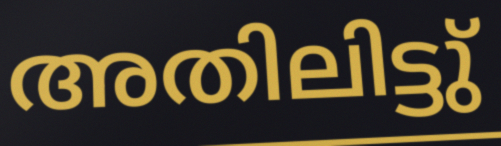
അതിലിട്ടു്